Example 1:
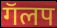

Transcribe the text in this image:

गॅलप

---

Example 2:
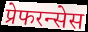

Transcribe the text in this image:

प्रेफरन्सेस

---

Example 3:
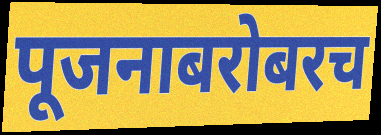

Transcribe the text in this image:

पूजनाबरोबरच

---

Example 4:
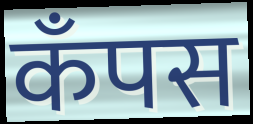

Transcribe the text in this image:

कॅंपस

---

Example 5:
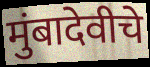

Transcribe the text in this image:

मुंबादेवीचे